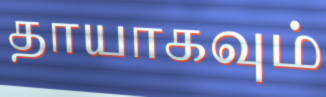
தாயாகவும்